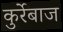
कुर्रेबाज